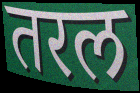
तरल